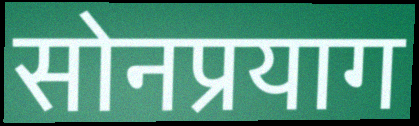
सोनप्रयाग